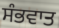
ਸੰਭਵਾਤ